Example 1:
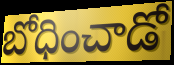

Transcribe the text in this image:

బోధించాడో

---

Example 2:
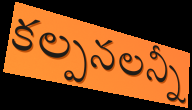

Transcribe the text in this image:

కల్పనలన్నీ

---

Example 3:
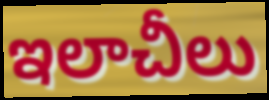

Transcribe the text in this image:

ఇలాచీలు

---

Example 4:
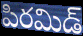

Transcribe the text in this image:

పిరమిడ్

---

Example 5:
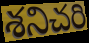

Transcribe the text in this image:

శనిచరి